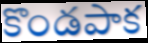
కొండపాక